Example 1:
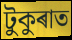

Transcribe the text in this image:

টুকুৰাত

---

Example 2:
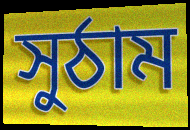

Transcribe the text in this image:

সুঠাম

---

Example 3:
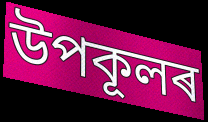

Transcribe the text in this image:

উপকূলৰ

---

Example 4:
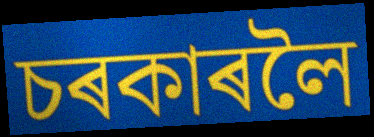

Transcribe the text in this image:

চৰকাৰলৈ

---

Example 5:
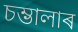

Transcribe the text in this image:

চম্ভালাৰ